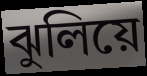
ঝুলিয়ে